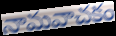
నామవాచకం